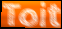
Toit